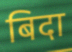
बिदा